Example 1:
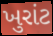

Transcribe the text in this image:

ખુરાંટ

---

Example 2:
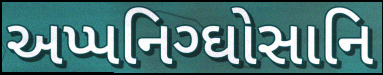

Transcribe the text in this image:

અપ્પનિગ્ઘોસાનિ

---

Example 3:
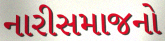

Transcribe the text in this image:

નારીસમાજનો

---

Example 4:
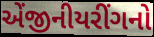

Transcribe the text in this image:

એંજીનીયરીંગનો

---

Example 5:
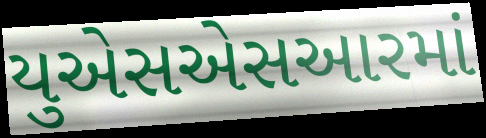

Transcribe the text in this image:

યુએસએસઆરમાં